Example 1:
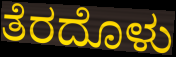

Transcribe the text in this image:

ತೆರದೊಳು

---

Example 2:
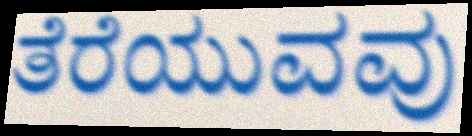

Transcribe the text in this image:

ತೆರೆಯುವವು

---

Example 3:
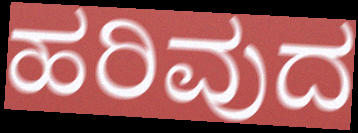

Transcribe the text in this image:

ಹರಿವುದ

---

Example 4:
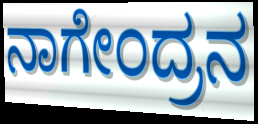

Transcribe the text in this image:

ನಾಗೇಂದ್ರನ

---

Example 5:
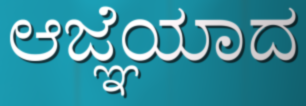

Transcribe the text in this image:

ಆಜ್ಞೆಯಾದ